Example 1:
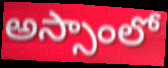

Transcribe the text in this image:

అస్సాంలో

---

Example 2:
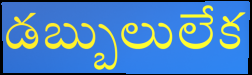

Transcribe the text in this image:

డబ్బులులేక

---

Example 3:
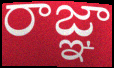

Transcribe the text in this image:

రాజ్ఞా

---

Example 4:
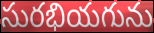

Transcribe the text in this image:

సురభియగును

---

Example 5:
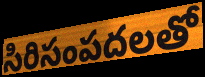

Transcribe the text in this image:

సిరిసంపదలతో